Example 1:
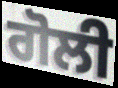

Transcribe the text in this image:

ਗੋਲੀ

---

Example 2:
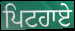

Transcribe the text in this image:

ਪਿਟਹਾਏ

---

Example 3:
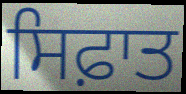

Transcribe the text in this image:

ਸਿਫ਼ਾਤ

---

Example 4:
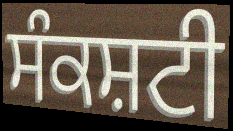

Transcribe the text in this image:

ਸੰਕਸ਼ਟੀ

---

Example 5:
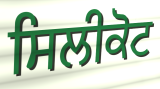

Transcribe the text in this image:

ਸਿਲੀਕੋਟ